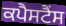
ਕਪੈਸਟੈਂਸ